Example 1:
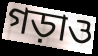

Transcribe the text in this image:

গড়াও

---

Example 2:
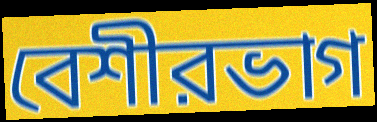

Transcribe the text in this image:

বেশীরভাগ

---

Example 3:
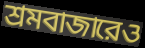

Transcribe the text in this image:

শ্রমবাজারেও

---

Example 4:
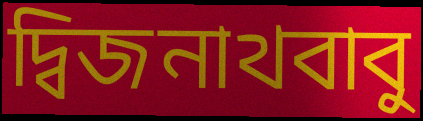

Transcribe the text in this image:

দ্বিজনাথবাবু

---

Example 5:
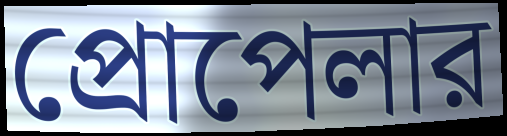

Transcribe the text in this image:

প্রোপেলার